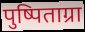
पुष्पिताग्रा